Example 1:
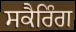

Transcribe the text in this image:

ਸਕੈਰਿੰਗ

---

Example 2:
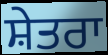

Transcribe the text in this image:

ਸ਼ੇਤਰਾ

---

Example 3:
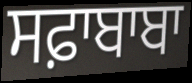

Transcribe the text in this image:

ਸਫ਼ਾਬਾਬਾ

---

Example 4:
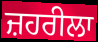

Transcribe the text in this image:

ਜ਼ਹਰੀਲਾ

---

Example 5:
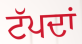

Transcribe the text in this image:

ਟੱਪਦਾਂ